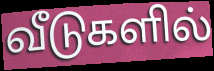
வீடுகளில்